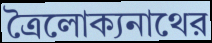
ত্রৈলোক্যনাথের